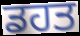
ਡਹਤ